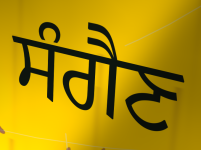
ਸੰਗੈਣ